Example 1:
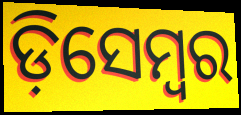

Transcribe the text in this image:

ଡ଼ିସେମ୍ୱର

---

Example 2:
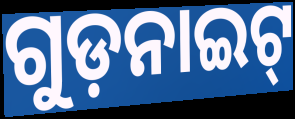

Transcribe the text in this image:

ଗୁଡ଼ନାଇଟ୍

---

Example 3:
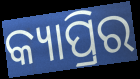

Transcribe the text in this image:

କ୍ୟାପ୍ରିର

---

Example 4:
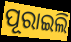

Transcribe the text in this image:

ପୂରାଇଲି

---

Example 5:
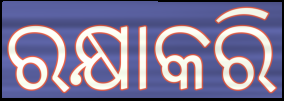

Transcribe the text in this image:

ରକ୍ଷାକରି